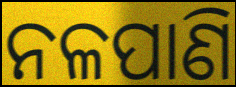
ନଳପାଣି